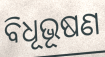
ବିଧୂଭୂଷଣ